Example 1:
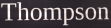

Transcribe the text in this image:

Thompson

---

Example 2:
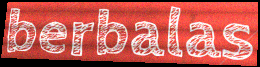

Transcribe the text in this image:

berbalas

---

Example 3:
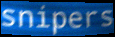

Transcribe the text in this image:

snipers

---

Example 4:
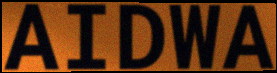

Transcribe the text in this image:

AIDWA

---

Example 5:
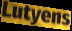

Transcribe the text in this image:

Lutyens